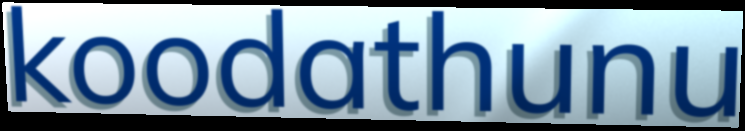
koodathunu